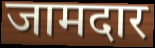
जामदार